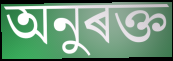
অনুৰক্ত